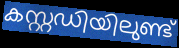
കസ്റ്റഡിയിലുണ്ട്